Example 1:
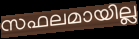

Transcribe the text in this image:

സഫലമായില്ല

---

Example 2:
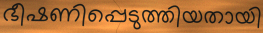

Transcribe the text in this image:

ഭീഷണിപ്പെടുത്തിയതായി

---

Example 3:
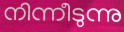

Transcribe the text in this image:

നിന്നീടുന്നു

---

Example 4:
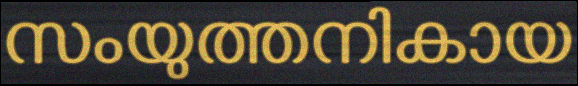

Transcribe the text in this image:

സംയുത്തനികായ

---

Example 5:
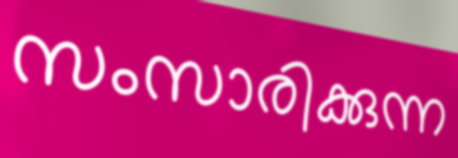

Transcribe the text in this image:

സംസാരിക്കുന്ന